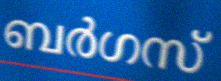
ബർഗസ്